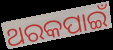
ଥରକପାଇଁ